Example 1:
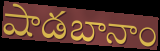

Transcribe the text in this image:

షాడబానాం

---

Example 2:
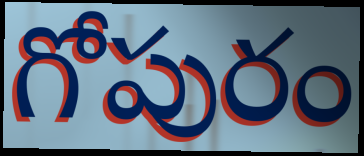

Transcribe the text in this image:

గోపురం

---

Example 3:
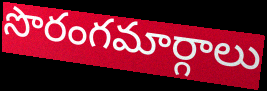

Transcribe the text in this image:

సొరంగమార్గాలు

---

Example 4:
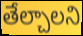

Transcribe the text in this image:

తేల్చాలని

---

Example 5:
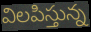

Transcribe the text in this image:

విలపిస్తున్న